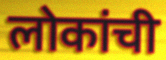
लोकांची